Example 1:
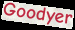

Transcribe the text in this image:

Goodyer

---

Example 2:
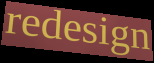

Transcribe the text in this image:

redesign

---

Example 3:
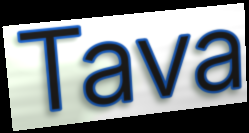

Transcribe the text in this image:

Tava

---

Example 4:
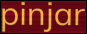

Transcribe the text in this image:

pinjar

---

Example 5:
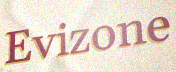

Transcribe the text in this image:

Evizone